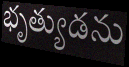
భృత్యుడను